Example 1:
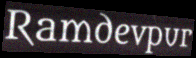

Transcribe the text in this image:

Ramdevpur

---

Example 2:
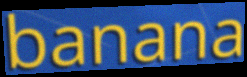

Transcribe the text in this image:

banana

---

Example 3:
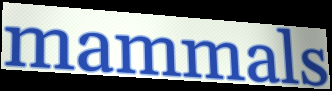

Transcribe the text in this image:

mammals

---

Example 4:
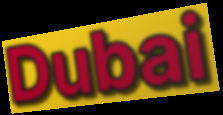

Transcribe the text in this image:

Dubai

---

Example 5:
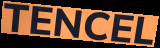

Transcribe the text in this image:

TENCEL